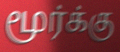
மூர்க்கு